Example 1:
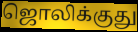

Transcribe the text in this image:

ஜொலிக்குது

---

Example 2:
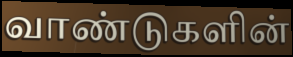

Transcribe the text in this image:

வாண்டுகளின்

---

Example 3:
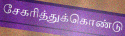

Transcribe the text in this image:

சேகரித்துக்கொண்டு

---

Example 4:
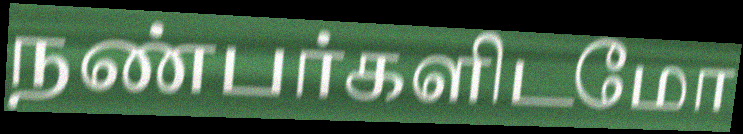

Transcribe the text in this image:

நண்பர்களிடமோ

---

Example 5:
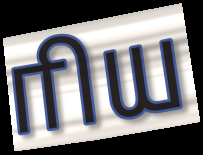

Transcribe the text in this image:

ரிய